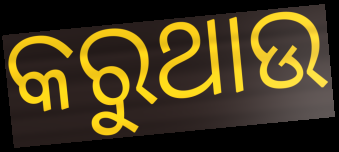
କରୁଥାଉ